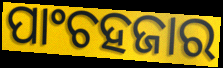
ପାଂଚହଜାର